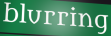
blurring